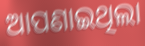
ଆପଣାଇଥିଲା